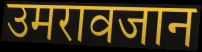
उमरावजान